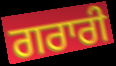
ਗਰਾਰੀ